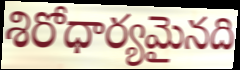
శిరోధార్యమైనది